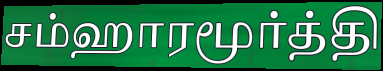
சம்ஹாரமூர்த்தி